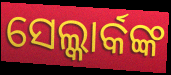
ସେଲ୍କାର୍କଙ୍କ